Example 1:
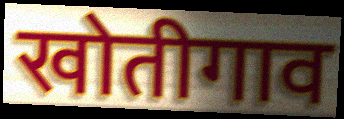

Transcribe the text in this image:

खोतीगाव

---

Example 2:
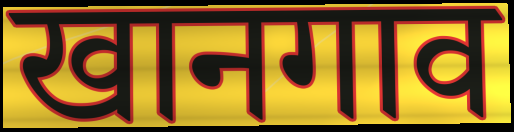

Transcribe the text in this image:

खानगाव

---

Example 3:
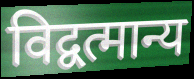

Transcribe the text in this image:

विद्वत्मान्य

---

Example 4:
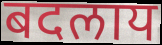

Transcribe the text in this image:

बदलाय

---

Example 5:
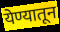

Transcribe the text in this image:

येण्यातून